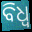
ବିଧ୍ଵ